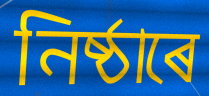
নিষ্ঠাৰে